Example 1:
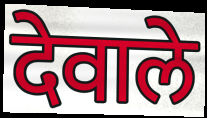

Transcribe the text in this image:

देवाले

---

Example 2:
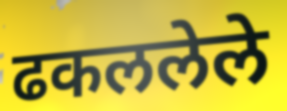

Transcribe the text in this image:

ढकललेले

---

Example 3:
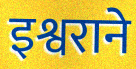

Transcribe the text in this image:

इश्वराने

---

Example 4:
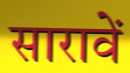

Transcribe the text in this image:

सारावें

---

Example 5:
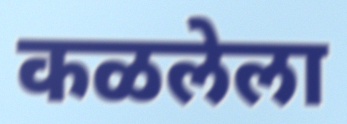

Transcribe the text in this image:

कळलेला